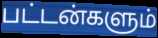
பட்டன்களும்